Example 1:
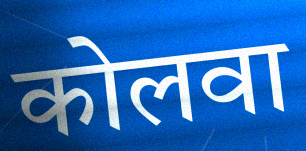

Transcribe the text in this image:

कोलवा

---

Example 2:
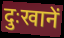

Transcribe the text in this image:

दुःखानें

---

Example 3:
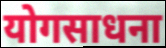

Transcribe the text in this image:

योगसाधना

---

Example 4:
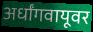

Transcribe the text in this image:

अर्धांगवायूवर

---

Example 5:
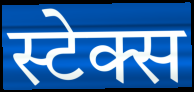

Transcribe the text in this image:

स्टेक्स